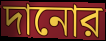
দানোর